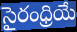
సైరంధ్రియే